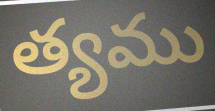
త్యము